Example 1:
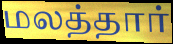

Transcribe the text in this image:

மலத்தார்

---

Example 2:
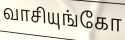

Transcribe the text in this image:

வாசியுங்கோ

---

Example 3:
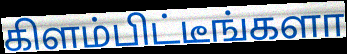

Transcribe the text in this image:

கிளம்பிட்டீங்களா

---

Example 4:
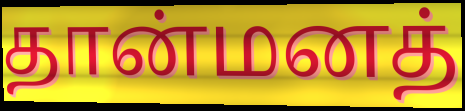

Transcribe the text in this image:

தான்மனத்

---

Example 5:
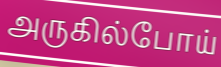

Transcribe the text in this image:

அருகில்போய்